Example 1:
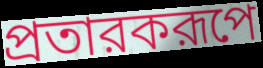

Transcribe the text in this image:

প্রতারকরূপে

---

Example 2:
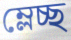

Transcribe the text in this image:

ম্লেচ্ছ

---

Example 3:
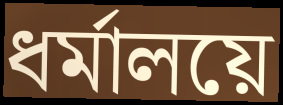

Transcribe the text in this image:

ধর্মালয়ে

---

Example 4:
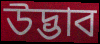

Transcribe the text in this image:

উদ্ভাব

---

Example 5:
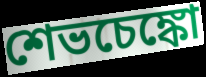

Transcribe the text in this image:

শেভচেঙ্কো